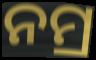
ନମ୍ର